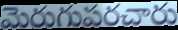
మెరుగుపరచారు